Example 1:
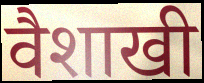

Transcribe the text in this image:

वैशाखी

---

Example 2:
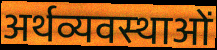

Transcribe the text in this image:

अर्थव्यवस्थाओं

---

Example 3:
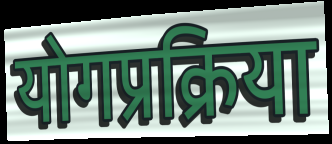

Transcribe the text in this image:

योगप्रक्रिया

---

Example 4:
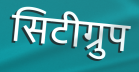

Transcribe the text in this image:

सिटीग्रुप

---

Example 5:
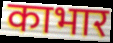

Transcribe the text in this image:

काभार